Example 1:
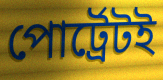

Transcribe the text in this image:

পোর্ট্রেটই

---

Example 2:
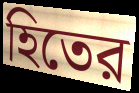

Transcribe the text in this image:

হিতের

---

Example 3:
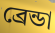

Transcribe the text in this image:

ব্রেন্ডা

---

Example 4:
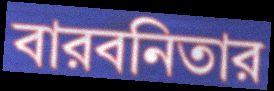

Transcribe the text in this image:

বারবনিতার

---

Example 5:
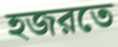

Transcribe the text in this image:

হজরতে